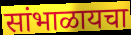
सांभाळायचा